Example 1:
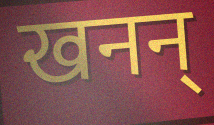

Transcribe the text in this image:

खनन्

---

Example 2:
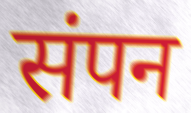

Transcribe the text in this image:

संपन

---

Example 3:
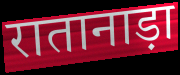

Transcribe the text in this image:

रातानाड़ा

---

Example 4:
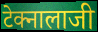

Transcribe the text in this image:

टेक्नालाजी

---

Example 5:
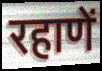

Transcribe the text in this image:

रहाणें